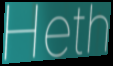
Heth